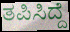
ತಪಿಸಿದ್ದೆ